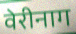
वेरीनाग